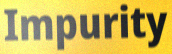
Impurity